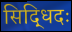
सिद्धिदः